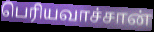
பெரியவாச்சான்